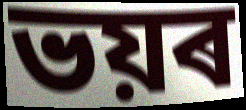
ভয়ৰ